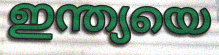
ഇന്ത്യയെ